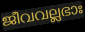
ജീവവല്ലഭാഃ